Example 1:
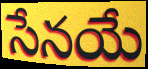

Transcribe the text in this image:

సేనయే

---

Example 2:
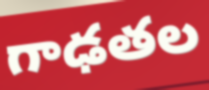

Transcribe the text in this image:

గాఢతల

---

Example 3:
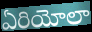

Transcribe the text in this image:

ఏరియోలా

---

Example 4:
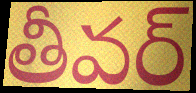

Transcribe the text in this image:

తీవర్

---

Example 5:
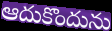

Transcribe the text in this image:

ఆదుకొందును